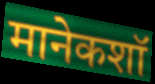
मानेकशॉ